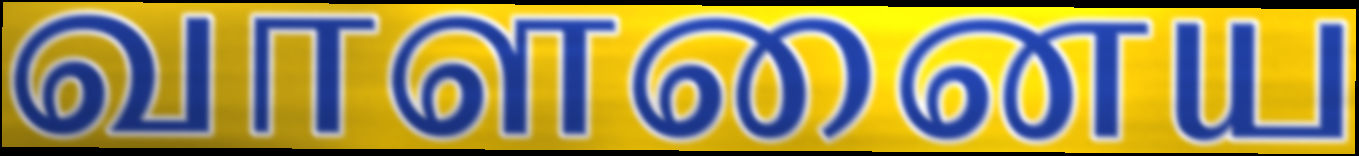
வாளனைய